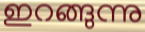
ഇറങ്ങുന്നു